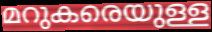
മറുകരെയുള്ള